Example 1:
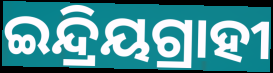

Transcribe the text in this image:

ଇନ୍ଦ୍ରିୟଗ୍ରାହୀ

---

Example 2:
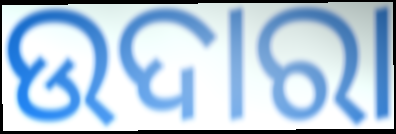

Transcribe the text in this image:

ଉଦାରା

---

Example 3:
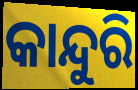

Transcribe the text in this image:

କାନ୍ଦୁରି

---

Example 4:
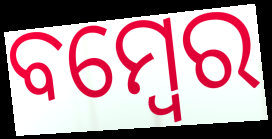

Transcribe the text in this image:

ବମ୍ୱେର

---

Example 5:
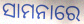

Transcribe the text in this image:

ସାମନାରେ